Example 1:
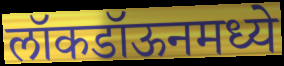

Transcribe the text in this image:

लॉकडॉऊनमध्ये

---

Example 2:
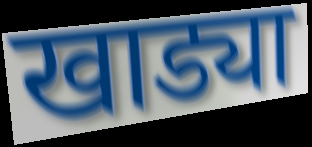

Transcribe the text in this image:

खाड्या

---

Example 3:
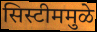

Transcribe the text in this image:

सिस्टीममुळे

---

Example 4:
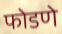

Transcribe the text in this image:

फोडणे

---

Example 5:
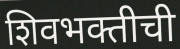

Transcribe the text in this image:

शिवभक्तीची